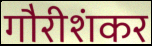
गौरीशंकर